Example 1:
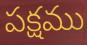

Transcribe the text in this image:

పక్షము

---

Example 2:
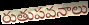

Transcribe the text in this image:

రుతుపవనాలు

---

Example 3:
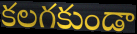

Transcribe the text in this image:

కలగకుండా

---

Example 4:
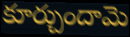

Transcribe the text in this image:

కూర్చుందామె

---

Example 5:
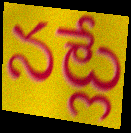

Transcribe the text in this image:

నట్లే